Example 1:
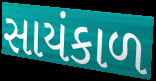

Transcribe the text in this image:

સાયંકાળ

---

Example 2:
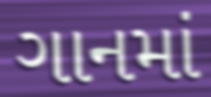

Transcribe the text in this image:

ગાનમાં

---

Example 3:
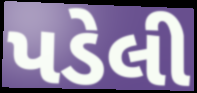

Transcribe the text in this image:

પડેલી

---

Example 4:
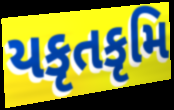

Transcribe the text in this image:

યકૃતકૃમિ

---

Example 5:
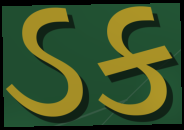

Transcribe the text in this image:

ડક